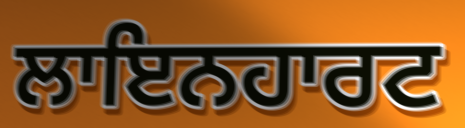
ਲਾਇਨਹਾਰਟ